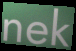
nek